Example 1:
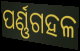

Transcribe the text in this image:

ପର୍ଣ୍ଣଗହଳ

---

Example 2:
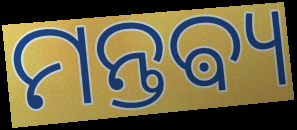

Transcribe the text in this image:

ମନ୍ତଵ୍ୟ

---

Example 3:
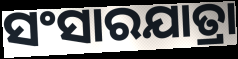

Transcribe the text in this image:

ସଂସାରଯାତ୍ରା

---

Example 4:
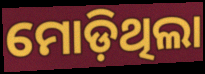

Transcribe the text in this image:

ମୋଡ଼ିଥିଲା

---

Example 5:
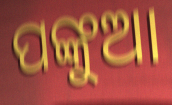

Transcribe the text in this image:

ପଙ୍କୁଆ